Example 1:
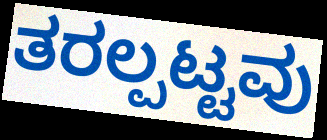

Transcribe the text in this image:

ತರಲ್ಪಟ್ಟವು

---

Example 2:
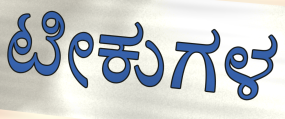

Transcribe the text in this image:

ಟೀಕುಗಳ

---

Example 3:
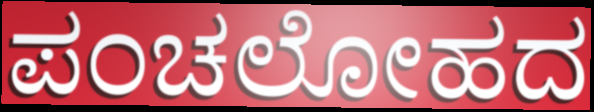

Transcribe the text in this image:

ಪಂಚಲೋಹದ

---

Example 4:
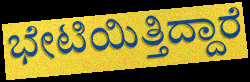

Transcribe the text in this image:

ಭೇಟಿಯಿತ್ತಿದ್ದಾರೆ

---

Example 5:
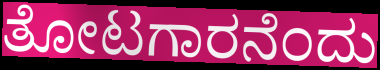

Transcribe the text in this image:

ತೋಟಗಾರನೆಂದು